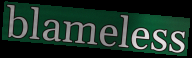
blameless